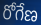
రోగేణ